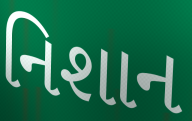
નિશાન